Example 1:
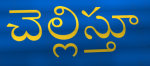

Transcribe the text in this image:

చెల్లిస్తూ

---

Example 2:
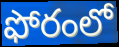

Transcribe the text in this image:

ఫోరంలో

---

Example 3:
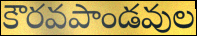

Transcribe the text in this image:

కౌరవపాండవుల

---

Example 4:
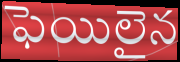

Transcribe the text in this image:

ఫెయిలైన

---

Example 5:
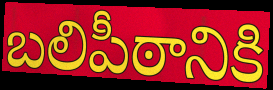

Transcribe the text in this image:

బలిపీఠానికి